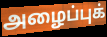
அழைப்புக்